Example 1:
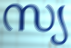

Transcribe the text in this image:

സ്യ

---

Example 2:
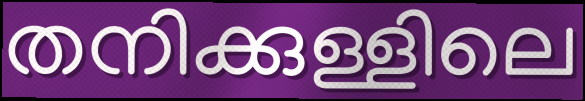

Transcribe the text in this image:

തനിക്കുള്ളിലെ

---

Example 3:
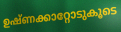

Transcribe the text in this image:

ഉഷ്ണക്കാറ്റോടുകൂടെ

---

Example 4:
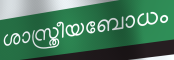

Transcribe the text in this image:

ശാസ്ത്രീയബോധം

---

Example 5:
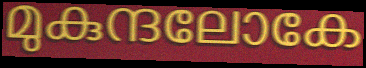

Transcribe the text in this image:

മുകുന്ദലോകേ